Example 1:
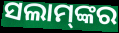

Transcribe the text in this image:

ସଲାମ୍‌ଙ୍କର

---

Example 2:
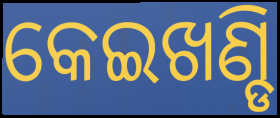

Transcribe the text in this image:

କେଇଖଣ୍ଡି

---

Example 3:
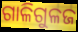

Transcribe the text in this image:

ଗାଳିଗୁଳଜ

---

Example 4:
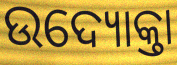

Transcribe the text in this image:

ଉଦ୍ୟୋକ୍ତା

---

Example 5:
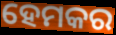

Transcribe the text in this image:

ହେମକର